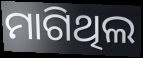
ମାଗିଥିଲ